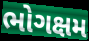
ભોગક્ષમ